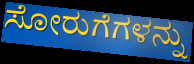
ಸೋರುಗೆಗಳನ್ನು